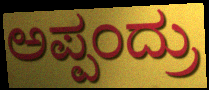
ಅಪ್ಪಂದ್ರು